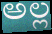
అల్ల